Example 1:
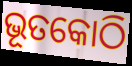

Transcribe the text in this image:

ଭୂତକୋଠି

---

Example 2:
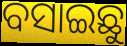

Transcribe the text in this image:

ବସାଇଛୁ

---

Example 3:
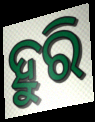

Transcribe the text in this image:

ହୁରି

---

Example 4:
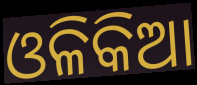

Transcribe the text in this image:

ଓଳିକିଆ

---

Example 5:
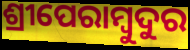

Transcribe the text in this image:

ଶ୍ରୀପେରାମ୍ବୁଦୁର